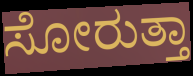
ಸೋರುತ್ತಾ